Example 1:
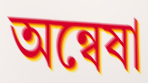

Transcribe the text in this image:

অন্বেষা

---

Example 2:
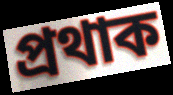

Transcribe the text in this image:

প্ৰথাক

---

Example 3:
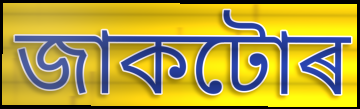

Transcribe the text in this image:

জাকটোৰ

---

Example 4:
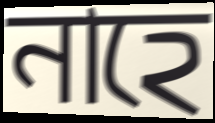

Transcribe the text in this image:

নাহে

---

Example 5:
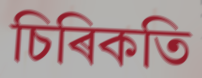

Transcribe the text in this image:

চিৰিকতি